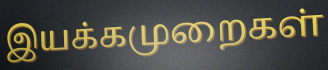
இயக்கமுறைகள்